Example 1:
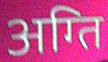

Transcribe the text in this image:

अग्ति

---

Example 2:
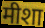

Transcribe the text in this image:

मीशा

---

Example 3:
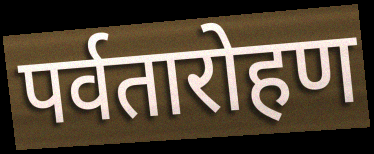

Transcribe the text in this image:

पर्वतारोहण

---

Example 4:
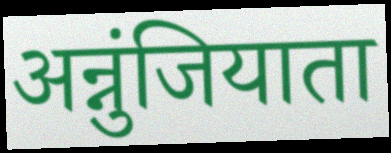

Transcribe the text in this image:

अन्नुंजियाता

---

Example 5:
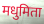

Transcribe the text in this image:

मधुमिता